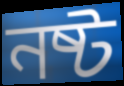
নষ্ট